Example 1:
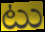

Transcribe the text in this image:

టు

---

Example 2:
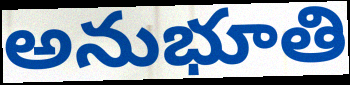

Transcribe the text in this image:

అనుభూతి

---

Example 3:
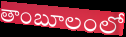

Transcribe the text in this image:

తాంబూలంలో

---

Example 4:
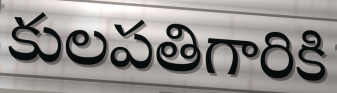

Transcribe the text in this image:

కులపతిగారికి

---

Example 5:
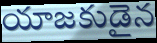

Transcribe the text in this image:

యాజకుడైన